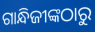
ଗାନ୍ଧିଜୀଙ୍କଠାରୁ